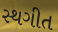
સ્થગીત